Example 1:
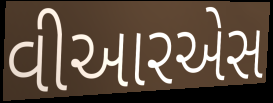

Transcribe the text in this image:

વીઆરએસ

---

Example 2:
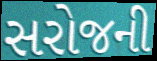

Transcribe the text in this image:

સરોજની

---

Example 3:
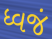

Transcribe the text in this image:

ધ્વજં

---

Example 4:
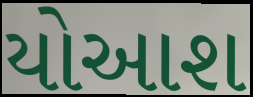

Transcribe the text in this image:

યોઆશ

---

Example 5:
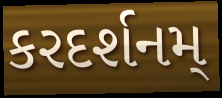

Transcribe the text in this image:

કરદર્શનમ્